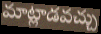
మాట్లాడవచ్చు